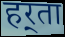
हर्ता